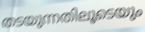
തടയുന്നതിലൂടെയും